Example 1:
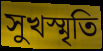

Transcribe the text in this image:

সুখস্মৃতি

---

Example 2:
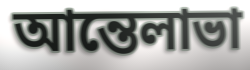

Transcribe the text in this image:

আন্তেলাভা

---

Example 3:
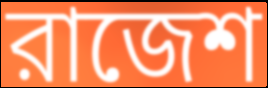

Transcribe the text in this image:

রাজেশ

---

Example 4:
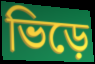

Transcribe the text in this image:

ভিড়ে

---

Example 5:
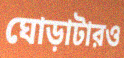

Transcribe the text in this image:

ঘোড়াটারও